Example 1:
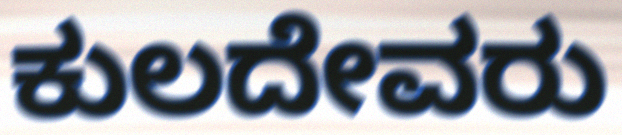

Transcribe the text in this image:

ಕುಲದೇವರು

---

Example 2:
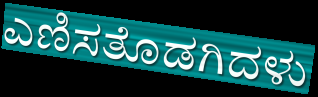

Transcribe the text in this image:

ಎಣಿಸತೊಡಗಿದಳು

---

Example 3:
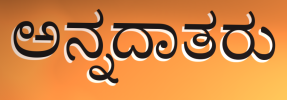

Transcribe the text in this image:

ಅನ್ನದಾತರು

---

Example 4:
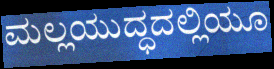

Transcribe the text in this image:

ಮಲ್ಲಯುದ್ಧದಲ್ಲಿಯೂ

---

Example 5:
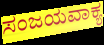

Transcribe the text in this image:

ಸಂಜಯವಾಕ್ಯ